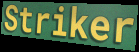
Striker